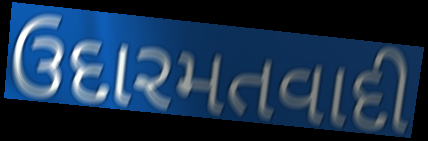
ઉદારમતવાદી